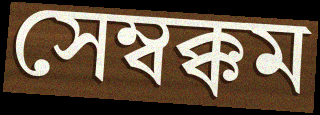
সেম্বক্কম